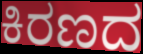
ಕಿರಣದ